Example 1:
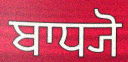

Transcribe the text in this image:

ਬਾਧ੍ਯੋ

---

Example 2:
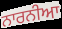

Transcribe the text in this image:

ਨਾਰਨੀਆ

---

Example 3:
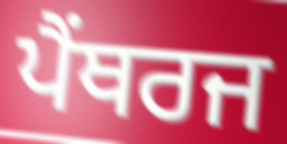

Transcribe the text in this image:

ਪੈਂਥਰਜ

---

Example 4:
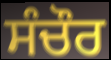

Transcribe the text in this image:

ਸੰਚੌਰ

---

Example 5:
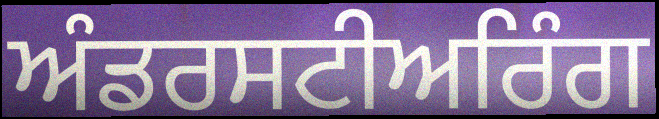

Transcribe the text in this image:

ਅੰਡਰਸਟੀਅਰਿੰਗ